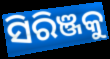
ସିରିଞ୍ଜକୁ